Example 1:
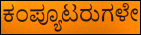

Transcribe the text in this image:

ಕಂಪ್ಯೂಟರುಗಳೇ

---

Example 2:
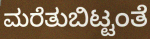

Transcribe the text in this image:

ಮರೆತುಬಿಟ್ಟಂತೆ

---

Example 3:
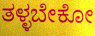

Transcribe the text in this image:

ತಳ್ಳಬೇಕೋ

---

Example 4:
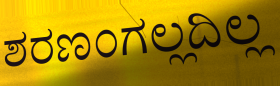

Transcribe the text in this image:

ಶರಣಂಗಲ್ಲದಿಲ್ಲ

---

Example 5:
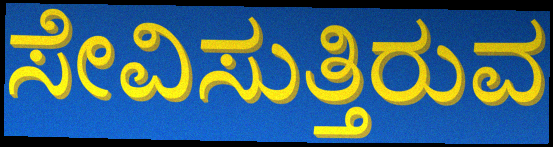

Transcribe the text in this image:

ಸೇವಿಸುತ್ತಿರುವ